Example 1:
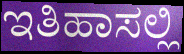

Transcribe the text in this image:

ಇತಿಹಾಸಲ್ಲಿ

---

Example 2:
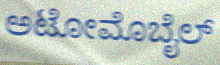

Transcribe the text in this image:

ಅಟೋಮೊಬೈಲ್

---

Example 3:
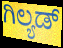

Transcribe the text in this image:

ಗಿಲ್ಯಡ್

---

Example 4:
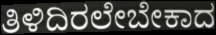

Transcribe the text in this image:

ತಿಳಿದಿರಲೇಬೇಕಾದ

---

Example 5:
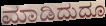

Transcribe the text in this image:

ಮಾಡಿದುದೂ